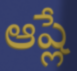
ఆష్లే